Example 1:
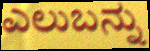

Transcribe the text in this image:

ಎಲುಬನ್ನು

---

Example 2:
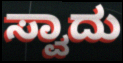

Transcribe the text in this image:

ಸ್ವಾದು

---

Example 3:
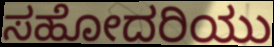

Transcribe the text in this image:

ಸಹೋದರಿಯು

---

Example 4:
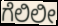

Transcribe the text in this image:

ಗೆಲಿಲೀ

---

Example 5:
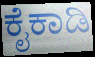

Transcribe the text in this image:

ಕೈಕಾಡಿ